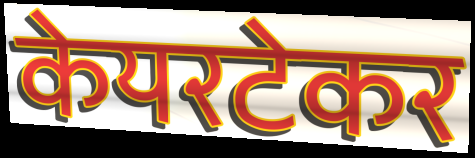
केयरटेकर